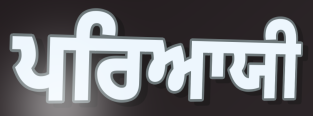
ਪਰਿਆਯੀ